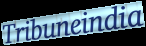
Tribuneindia